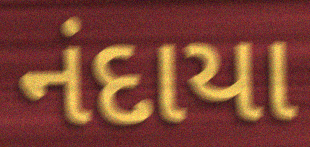
નંદાયા